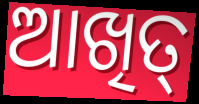
ଆଖିତ୍